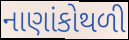
નાણાંકોથળી